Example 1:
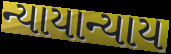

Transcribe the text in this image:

ન્યાયાન્યાય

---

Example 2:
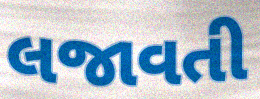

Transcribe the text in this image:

લજાવતી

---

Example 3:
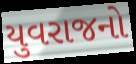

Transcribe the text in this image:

યુવરાજનો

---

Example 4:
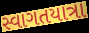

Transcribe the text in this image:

સ્વાગતયાત્રા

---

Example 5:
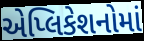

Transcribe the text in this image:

એપ્લિકેશનોમાં